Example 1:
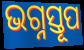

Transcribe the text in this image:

ଭଗ୍ନସ୍ତୂପ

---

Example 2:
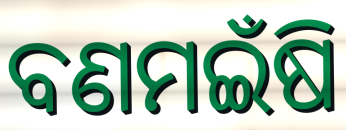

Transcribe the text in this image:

ବଣମଇଁଷି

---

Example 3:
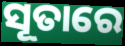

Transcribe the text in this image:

ସୂତାରେ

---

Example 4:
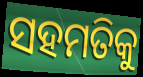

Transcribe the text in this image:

ସହମତିକୁ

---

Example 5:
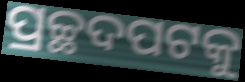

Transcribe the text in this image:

ପ୍ରଚ୍ଛଦପଟକୁ